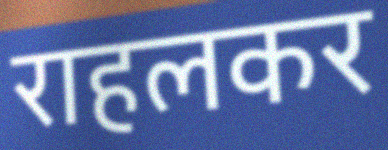
राहलकर